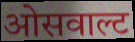
ओसवाल्ट